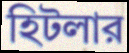
হিটলার